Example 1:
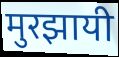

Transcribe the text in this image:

मुरझायी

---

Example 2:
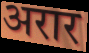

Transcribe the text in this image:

अरार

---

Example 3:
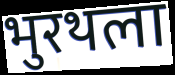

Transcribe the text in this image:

भुरथला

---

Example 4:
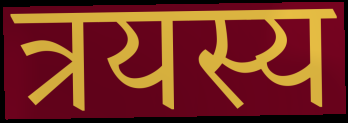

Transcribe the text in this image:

त्रयस्य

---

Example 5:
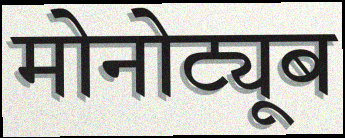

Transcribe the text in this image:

मोनोट्यूब